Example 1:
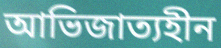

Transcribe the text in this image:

আভিজাত্যহীন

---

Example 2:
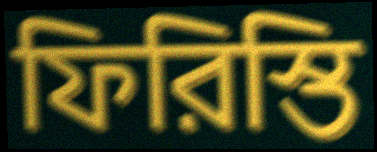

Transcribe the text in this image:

ফিরিস্তি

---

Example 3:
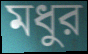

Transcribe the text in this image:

মধুর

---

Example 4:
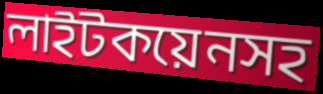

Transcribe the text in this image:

লাইটকয়েনসহ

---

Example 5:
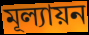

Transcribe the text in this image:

মূল্যায়ন